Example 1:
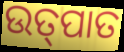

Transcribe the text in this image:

ଉତ୍‌ପାତ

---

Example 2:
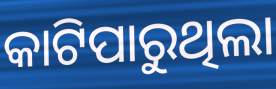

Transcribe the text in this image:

କାଟିପାରୁଥିଲା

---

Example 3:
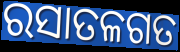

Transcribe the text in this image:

ରସାତଳଗତ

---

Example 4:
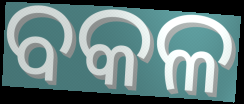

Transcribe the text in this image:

ବକଳ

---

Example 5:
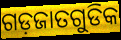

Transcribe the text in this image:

ଗଡ଼ଜାତଗୁଡିକ